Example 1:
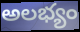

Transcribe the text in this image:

అలభ్యం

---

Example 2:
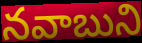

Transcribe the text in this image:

నవాబుని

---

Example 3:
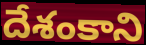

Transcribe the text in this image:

దేశంకాని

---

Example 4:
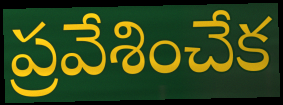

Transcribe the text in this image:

ప్రవేశించేక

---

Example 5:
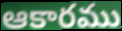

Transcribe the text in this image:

ఆకారము